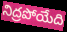
నిద్రపోయేది